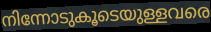
നിന്നോടുകൂടെയുള്ളവരെ